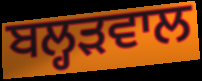
ਬਲ੍ਹੜਵਾਲ